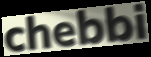
chebbi